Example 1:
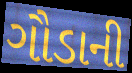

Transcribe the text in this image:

ગૌડાની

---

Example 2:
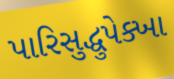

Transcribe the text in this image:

પારિસુદ્ધુપેક્ખા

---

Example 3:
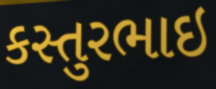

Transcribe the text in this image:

કસ્તુરભાઇ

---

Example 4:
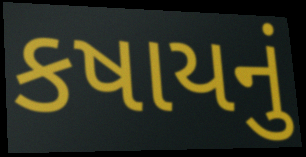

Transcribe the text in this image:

કષાયનું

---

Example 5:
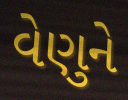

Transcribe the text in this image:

વેણુને